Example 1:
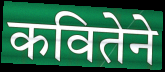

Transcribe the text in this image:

कवितेने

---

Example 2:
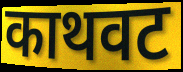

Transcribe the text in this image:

काथवट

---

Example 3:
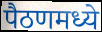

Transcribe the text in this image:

पैठणमध्ये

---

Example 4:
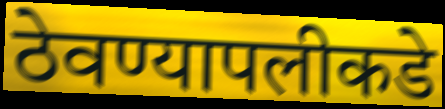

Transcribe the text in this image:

ठेवण्यापलीकडे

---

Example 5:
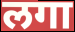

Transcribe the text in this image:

लगा